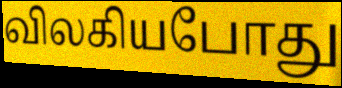
விலகியபோது